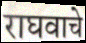
राघवाचे